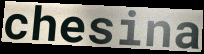
chesina